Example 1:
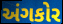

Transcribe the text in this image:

અંગકોર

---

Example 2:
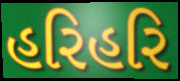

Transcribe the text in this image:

હરિહરિ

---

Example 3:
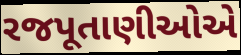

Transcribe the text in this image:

રજપૂતાણીઓએ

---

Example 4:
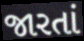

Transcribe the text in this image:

જારતાં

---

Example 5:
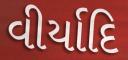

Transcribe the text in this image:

વીર્યાદિ